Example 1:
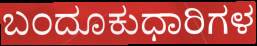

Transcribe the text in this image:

ಬಂದೂಕುಧಾರಿಗಳ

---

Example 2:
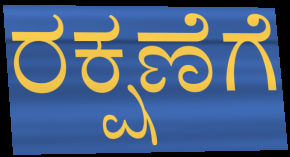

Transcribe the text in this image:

ರಕ್ಷಣೆಗೆ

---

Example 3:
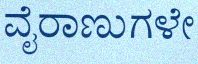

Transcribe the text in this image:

ವೈರಾಣುಗಳೇ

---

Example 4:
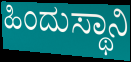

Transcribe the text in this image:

ಹಿಂದುಸ್ಥಾನಿ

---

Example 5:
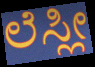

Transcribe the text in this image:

ಲೆಸ್ಲೀ